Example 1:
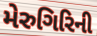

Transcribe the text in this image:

મેરુગિરિની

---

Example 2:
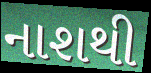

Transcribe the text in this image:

નાશથી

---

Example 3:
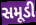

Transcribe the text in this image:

સમૂડી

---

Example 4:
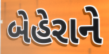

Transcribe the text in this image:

બેહેરાને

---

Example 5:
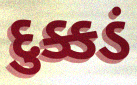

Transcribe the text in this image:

દુક્કડં